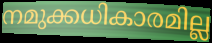
നമുക്കധികാരമില്ല